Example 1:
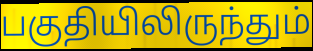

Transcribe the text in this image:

பகுதியிலிருந்தும்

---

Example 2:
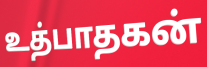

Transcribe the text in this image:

உத்பாதகன்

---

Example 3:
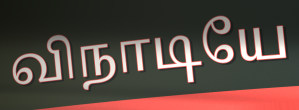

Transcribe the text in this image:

விநாடியே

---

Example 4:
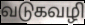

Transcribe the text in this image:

வடுகவழி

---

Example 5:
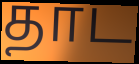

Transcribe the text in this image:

தாட